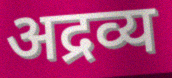
अद्रव्य